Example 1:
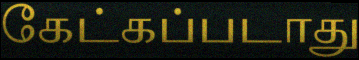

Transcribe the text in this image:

கேட்கப்படாது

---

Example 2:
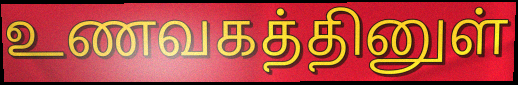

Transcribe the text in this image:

உணவகத்தினுள்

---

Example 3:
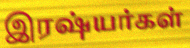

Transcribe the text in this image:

இரஷ்யர்கள்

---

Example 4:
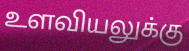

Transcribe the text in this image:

உளவியலுக்கு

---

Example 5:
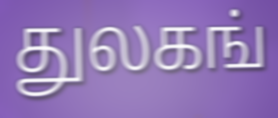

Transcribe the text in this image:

துலகங்